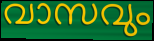
വാസവും